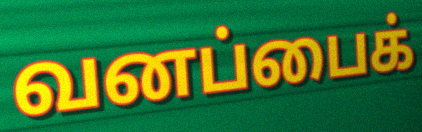
வனப்பைக்